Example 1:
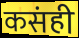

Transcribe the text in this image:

कसंही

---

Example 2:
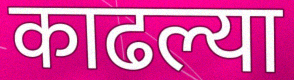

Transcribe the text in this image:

काढल्या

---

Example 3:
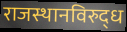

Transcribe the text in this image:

राजस्थानविरुद्ध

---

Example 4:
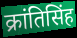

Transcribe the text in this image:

क्रांतिसिंह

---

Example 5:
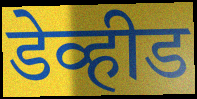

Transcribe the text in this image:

डेव्हीड